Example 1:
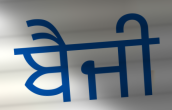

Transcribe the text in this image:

ਬੈਜੀ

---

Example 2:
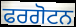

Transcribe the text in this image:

ਫਰਗੋਟਨ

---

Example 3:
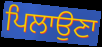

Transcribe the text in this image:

ਪਿਲਾਉਣਾ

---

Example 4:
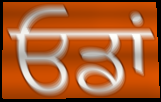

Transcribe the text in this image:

ਓਡਾਂ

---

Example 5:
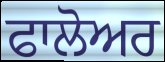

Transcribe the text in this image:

ਫਾਲੋਅਰ